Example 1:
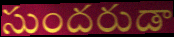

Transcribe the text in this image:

సుందరుడా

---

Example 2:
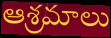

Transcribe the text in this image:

ఆశ్రమాలు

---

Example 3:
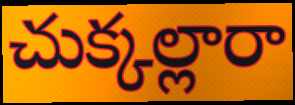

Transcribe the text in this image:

చుక్కల్లారా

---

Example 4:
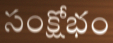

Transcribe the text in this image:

సంక్షోభం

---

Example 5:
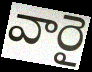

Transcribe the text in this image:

వారై